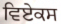
ਵਿਏਕਸ